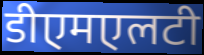
डीएमएलटी